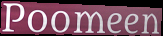
Poomeen